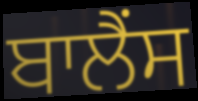
ਬਾਲੈਂਸ